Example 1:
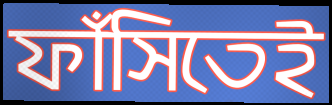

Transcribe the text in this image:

ফাঁসিতেই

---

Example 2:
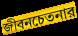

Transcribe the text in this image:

জীবনচেতনার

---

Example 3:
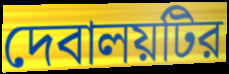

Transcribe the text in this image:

দেবালয়টির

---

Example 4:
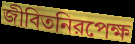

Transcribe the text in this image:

জীবিতনিরপেক্ষ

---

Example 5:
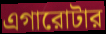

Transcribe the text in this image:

এগারোটার